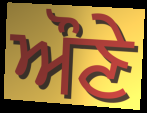
ਔਣੇ